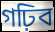
গঢ়িব